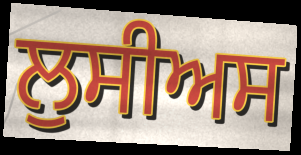
ਲੁਸੀਅਸ